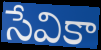
సేవికా